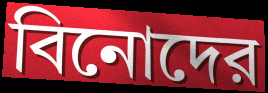
বিনোদের